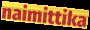
naimittika